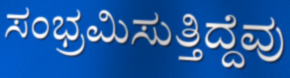
ಸಂಭ್ರಮಿಸುತ್ತಿದ್ದೆವು